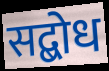
सद्बोध